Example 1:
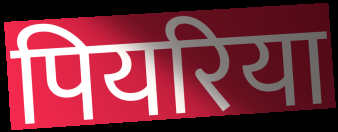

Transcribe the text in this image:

पियरिया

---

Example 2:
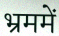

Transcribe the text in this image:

भ्रममें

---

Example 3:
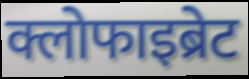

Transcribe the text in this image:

क्लोफाइब्रेट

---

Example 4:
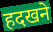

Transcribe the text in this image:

हदखने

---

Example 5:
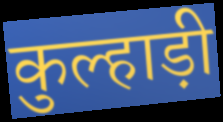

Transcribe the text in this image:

कुल्हाड़ी